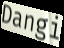
Dangi